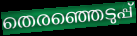
തെരഞ്ഞെടുപ്പ്